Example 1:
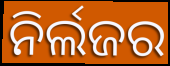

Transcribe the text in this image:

ନିର୍ଲଜର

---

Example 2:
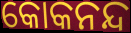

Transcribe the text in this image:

କୋକନନ୍ଦ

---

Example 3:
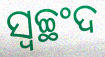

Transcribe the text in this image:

ସ୍ୱଚ୍ଛଂଦ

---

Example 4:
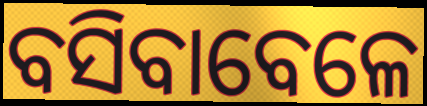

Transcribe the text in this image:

ବସିବାବେଳେ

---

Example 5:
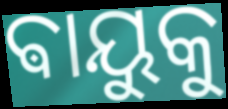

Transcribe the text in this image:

ଵାୟୁକୁ